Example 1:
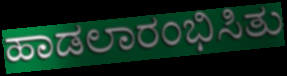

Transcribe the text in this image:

ಹಾಡಲಾರಂಭಿಸಿತು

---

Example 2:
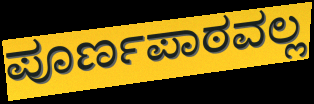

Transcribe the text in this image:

ಪೂರ್ಣಪಾಠವಲ್ಲ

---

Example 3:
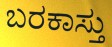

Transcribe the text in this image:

ಬರಕಾಸ್ತು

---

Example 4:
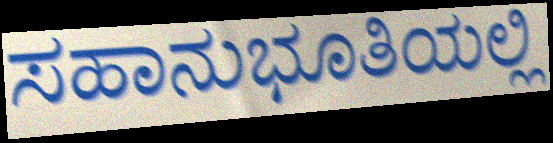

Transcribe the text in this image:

ಸಹಾನುಭೂತಿಯಲ್ಲಿ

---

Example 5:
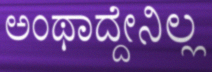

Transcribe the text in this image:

ಅಂಥಾದ್ದೇನಿಲ್ಲ